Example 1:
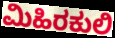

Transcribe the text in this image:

ಮಿಹಿರಕುಲಿ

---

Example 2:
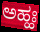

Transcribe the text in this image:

ಅಹ್ಹಃ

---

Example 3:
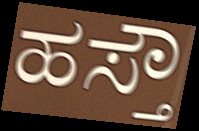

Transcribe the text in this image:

ಹಸ್ತೌ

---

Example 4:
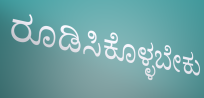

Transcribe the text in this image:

ರೂಡಿಸಿಕೊಳ್ಳಬೇಕು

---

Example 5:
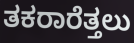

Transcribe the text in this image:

ತಕರಾರೆತ್ತಲು